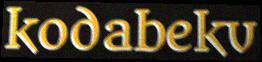
kodabeku